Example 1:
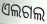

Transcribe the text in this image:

ଏଲଗଲ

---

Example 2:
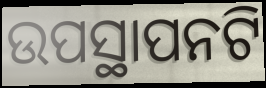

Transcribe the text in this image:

ଉପସ୍ଥାପନଟି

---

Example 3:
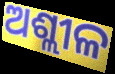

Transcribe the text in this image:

ଅଶ୍ଲୀଳ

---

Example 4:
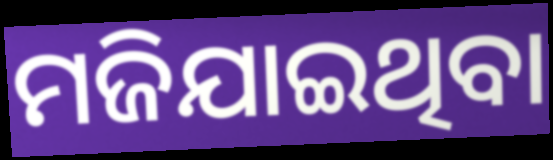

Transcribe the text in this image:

ମଜିଯାଇଥିବା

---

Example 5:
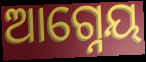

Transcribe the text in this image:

ଆଗ୍ନେୟ